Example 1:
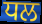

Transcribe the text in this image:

ਧਲ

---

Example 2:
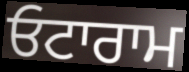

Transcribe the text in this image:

ਓਟਾਰਾਮ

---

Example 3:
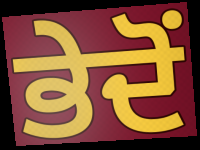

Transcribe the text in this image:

ਭੇਦੋਂ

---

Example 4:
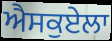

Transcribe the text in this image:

ਐਸਕੁਏਲਾ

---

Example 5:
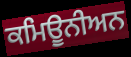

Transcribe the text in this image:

ਕਮਿਊਨੀਅਨ